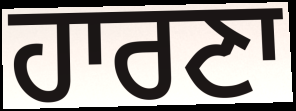
ਹਾਰਣਾ